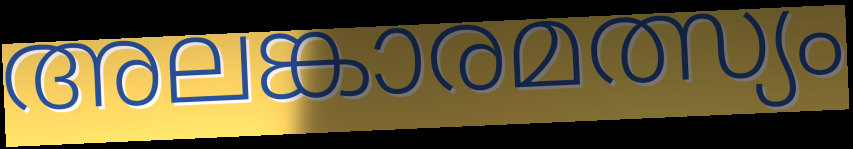
അലങ്കാരമത്സ്യം